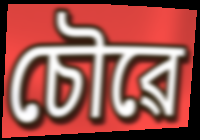
চৌৱে